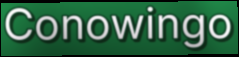
Conowingo